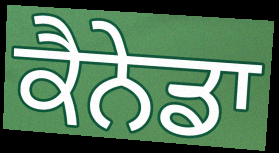
ਕੈਨੇਡਾ